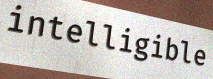
intelligible